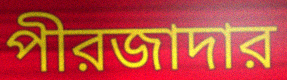
পীরজাদার